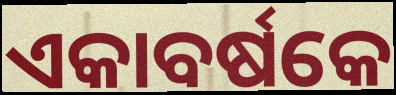
ଏକାବର୍ଷକେ